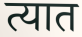
त्यात